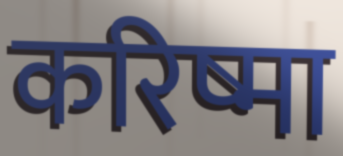
करिष्मा